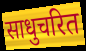
साधुचरित